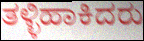
ತಳ್ಳಿಹಾಕಿದರು